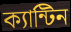
ক্যান্টিন